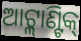
ଆଟ୍ଲାଣ୍ଟିକ୍